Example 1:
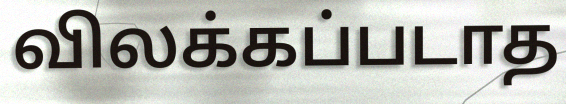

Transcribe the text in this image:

விலக்கப்படாத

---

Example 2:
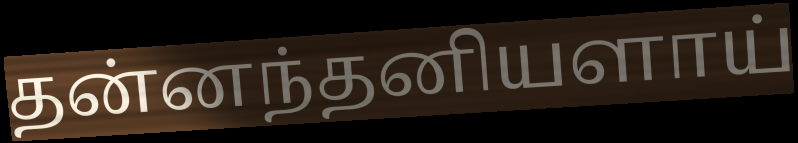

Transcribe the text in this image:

தன்னந்தனியளாய்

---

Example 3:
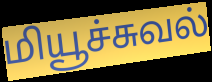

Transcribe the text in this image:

மியூச்சுவல்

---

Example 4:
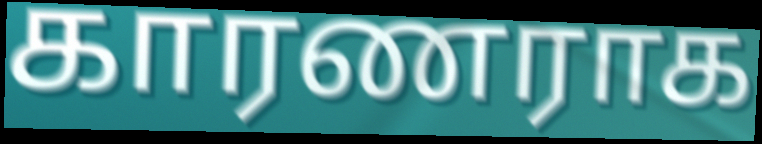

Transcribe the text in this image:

காரணராக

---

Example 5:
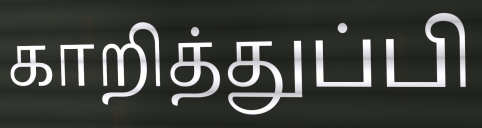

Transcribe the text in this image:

காறித்துப்பி